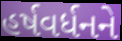
હર્ષવર્ધનને